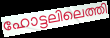
ഹോട്ടലിലെത്തി